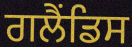
ਗਲੈਂਡਿਸ